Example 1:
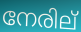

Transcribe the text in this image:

നേരില്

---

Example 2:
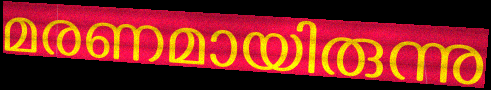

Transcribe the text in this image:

മരണമായിരുന്നു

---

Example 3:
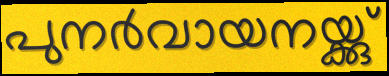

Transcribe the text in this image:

പുനർവായനയ്ക്കു്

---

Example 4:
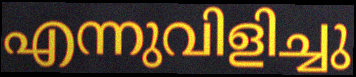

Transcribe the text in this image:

എന്നുവിളിച്ചു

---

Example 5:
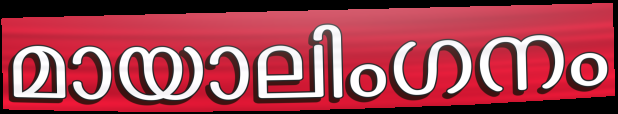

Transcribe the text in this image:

മായാലിംഗനം